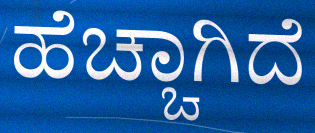
ಹೆಚ್ಚಾಗಿದೆ